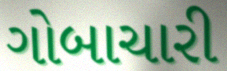
ગોબાચારી